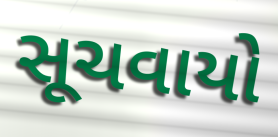
સૂચવાયો